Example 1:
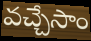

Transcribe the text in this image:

వచ్చేసాం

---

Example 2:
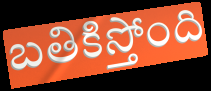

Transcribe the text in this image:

బతికిస్తోంది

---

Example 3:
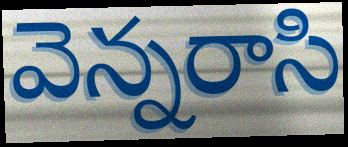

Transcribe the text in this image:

వెన్నరాసి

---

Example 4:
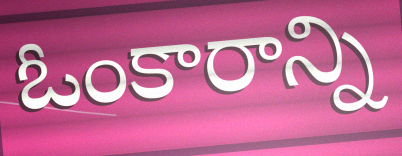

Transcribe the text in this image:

ఓంకారాన్ని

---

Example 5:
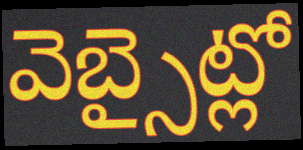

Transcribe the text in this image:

వెబ్సైట్లో